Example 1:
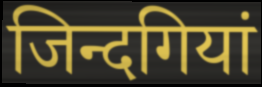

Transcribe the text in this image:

जिन्दगियां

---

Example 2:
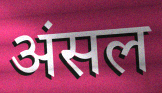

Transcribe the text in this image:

अंसल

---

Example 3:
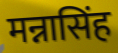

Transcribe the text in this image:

मन्नासिंह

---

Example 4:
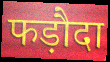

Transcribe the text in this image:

फड़ौदा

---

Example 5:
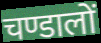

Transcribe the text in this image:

चण्डालों